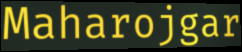
Maharojgar